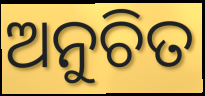
ଅନୁଚିତ